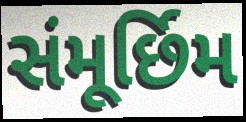
સંમૂર્છિમ